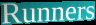
Runners